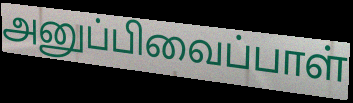
அனுப்பிவைப்பாள்